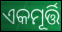
ଏକମୂର୍ତ୍ତି